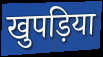
खुपड़िया